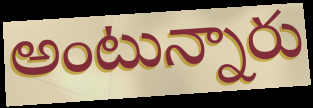
అంటున్నారు